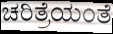
ಚರಿತ್ರೆಯಂತೆ